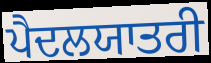
ਪੈਦਲਯਾਤਰੀ